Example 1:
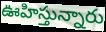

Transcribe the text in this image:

ఊహిస్తున్నారు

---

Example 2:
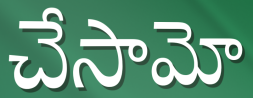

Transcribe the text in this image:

చేసామో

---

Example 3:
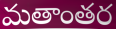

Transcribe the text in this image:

మతాంతర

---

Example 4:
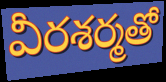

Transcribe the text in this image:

వీరశర్మతో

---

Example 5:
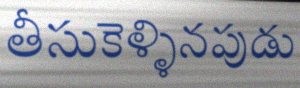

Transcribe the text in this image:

తీసుకెళ్ళినపుడు